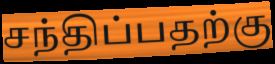
சந்திப்பதற்கு